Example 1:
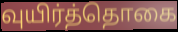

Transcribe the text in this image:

வுயிர்த்தொகை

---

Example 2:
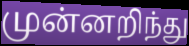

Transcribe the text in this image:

முன்னறிந்து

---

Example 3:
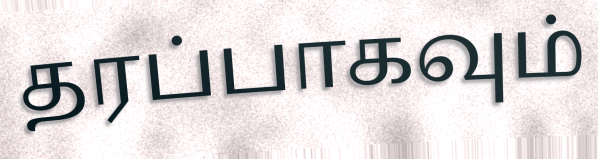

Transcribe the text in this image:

தரப்பாகவும்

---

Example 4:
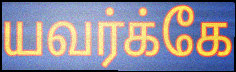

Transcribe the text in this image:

யவர்க்கே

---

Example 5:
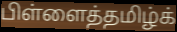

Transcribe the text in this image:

பிள்ளைத்தமிழ்க்